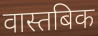
वास्तबिक